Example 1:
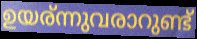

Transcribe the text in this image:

ഉയര്ന്നുവരാറുണ്ട്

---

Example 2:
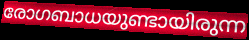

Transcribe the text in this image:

രോഗബാധയുണ്ടായിരുന്ന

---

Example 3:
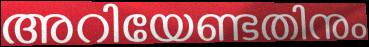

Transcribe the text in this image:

അറിയേണ്ടതിനും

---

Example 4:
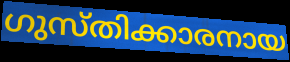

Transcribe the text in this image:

ഗുസ്തിക്കാരനായ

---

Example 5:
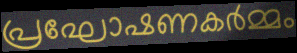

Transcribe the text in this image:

പ്രഘോഷണകർമ്മം